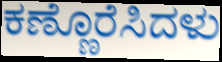
ಕಣ್ಣೊರೆಸಿದಳು